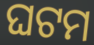
ଘଟମ